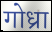
गोध्रा